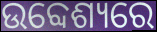
ଉବ୍ଦେଶ୍ୟରେ